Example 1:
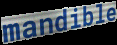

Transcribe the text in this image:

mandible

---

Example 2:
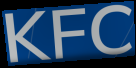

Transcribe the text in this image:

KFC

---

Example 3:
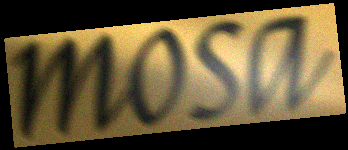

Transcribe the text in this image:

mosa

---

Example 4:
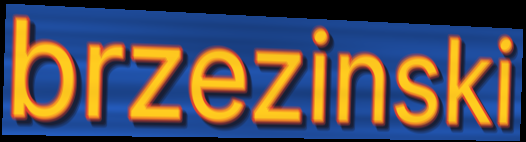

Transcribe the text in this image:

brzezinski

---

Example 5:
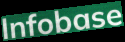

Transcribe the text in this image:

Infobase